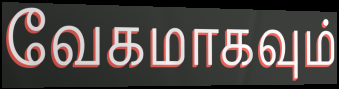
வேகமாகவும்